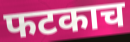
फटकाच